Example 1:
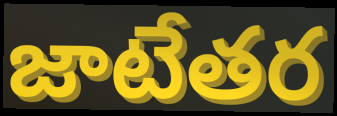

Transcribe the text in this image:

జాటేతర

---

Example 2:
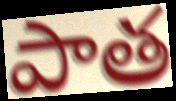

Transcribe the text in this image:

పాత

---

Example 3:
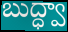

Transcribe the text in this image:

బుద్ధ్వా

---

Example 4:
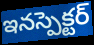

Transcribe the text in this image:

ఇనస్పెక్టర్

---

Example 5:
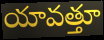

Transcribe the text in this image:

యావత్తూ